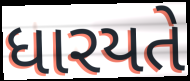
ધારયતે